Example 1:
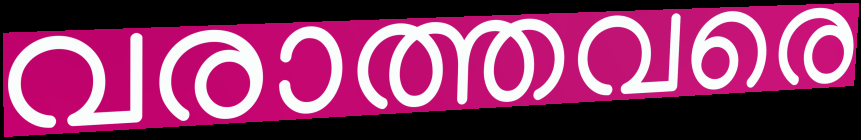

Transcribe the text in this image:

വരാത്തവരെ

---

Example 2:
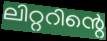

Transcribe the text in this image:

ലിറ്ററിന്റെ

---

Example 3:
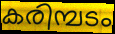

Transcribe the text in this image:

കരിമ്പടം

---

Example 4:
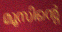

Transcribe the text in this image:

മൂസിന്റെ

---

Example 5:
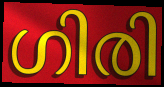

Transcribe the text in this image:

ഗിരി